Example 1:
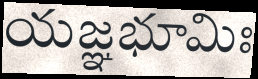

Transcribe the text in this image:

యజ్ఞభూమిః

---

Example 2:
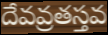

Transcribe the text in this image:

దేవవ్రతస్తవ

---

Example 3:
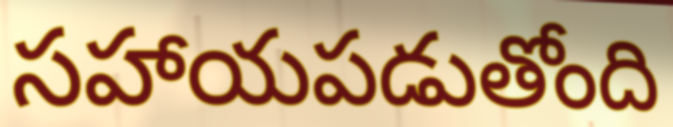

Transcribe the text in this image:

సహాయపడుతోంది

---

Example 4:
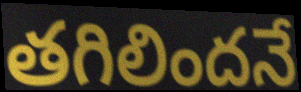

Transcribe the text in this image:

తగిలిందనే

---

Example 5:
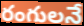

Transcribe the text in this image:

రంగులనే